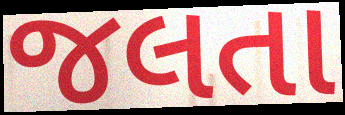
જલતા